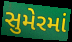
સુમેરમાં